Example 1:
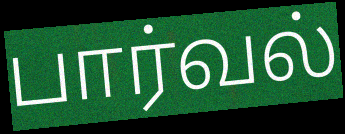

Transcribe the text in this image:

பார்வல்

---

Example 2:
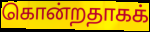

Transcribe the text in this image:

கொன்றதாகக்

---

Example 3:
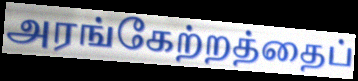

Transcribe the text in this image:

அரங்கேற்றத்தைப்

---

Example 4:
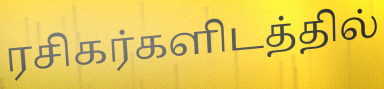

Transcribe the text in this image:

ரசிகர்களிடத்தில்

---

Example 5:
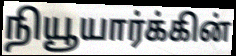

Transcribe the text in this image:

நியூயார்க்கின்